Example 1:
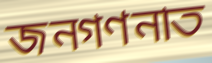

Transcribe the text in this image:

জনগণনাত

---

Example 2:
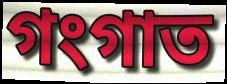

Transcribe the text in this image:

গংগাত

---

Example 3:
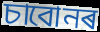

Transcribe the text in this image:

চাবোনৰ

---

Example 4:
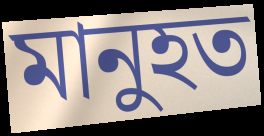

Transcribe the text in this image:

মানুহত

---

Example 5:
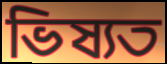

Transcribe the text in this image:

ভিষ্যত